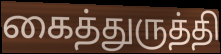
கைத்துருத்தி